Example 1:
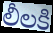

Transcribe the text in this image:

లీలకి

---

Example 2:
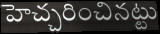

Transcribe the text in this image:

హెచ్చరించినట్టు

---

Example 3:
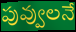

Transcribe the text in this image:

పువ్వులనే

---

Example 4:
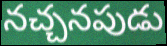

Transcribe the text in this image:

నచ్చనపుడు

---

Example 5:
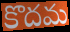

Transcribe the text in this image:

కొదమ